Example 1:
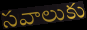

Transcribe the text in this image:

సవాలుకు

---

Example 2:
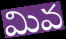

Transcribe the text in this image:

మివ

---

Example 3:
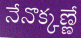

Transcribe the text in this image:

నేనొక్కణ్ణే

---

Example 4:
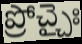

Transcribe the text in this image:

ప్రోచ్చైః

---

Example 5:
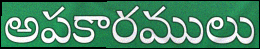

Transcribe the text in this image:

అపకారములు